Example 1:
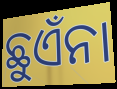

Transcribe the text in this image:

ଛୁଏଁନା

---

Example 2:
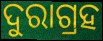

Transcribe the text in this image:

ଦୁରାଗ୍ରହ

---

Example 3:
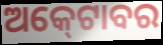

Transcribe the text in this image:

ଅକ୍‍ଟୋବର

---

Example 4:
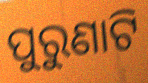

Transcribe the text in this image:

ପୁରୁଣାଟି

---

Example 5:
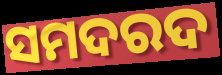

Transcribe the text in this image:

ସମଦରଦ